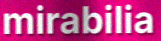
mirabilia